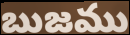
బుజము